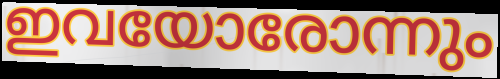
ഇവയോരോന്നും